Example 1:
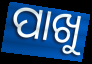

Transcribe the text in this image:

ପାଖୁ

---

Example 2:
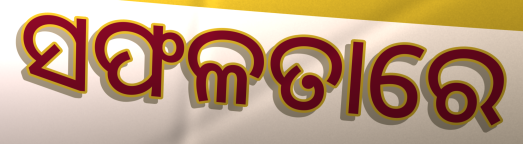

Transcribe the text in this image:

ସଫଳତାରେ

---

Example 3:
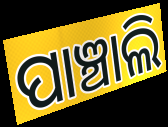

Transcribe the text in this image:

ପାଞ୍ଚାଲି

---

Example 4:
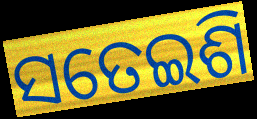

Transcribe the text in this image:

ସତେଇଶି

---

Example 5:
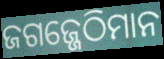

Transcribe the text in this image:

ଜଗଜ୍ଜେଠିମାନ